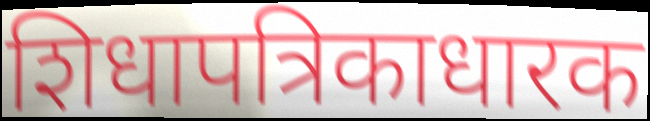
शिधापत्रिकाधारक